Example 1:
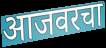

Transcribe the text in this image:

आजवरचा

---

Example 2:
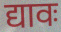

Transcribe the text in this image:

द्यावः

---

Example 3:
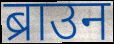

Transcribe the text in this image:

ब्राउन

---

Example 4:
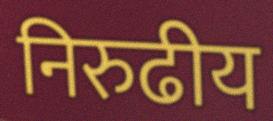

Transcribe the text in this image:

निरुढीय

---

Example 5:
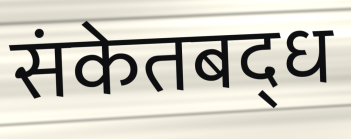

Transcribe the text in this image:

संकेतबद्ध